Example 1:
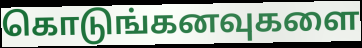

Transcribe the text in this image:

கொடுங்கனவுகளை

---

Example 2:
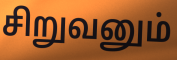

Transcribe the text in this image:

சிறுவனும்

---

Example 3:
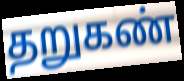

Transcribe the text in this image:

தறுகண்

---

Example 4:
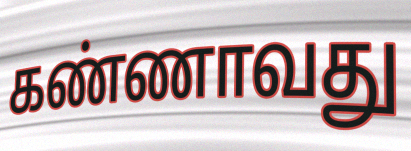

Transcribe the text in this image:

கண்ணாவது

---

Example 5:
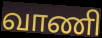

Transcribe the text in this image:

வாணி